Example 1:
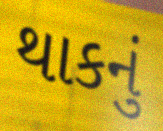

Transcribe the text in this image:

થાકનું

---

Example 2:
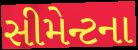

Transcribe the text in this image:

સીમેન્ટના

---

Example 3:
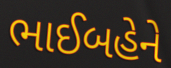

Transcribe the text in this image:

ભાઈબહેને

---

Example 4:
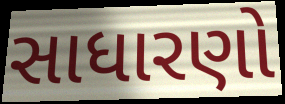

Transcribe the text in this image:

સાધારણો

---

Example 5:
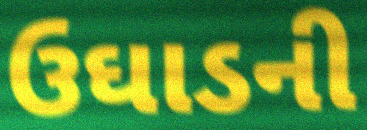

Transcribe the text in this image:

ઉઘાડની